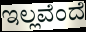
ಇಲ್ಲವೆಂದೆ